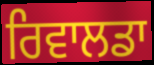
ਰਿਵਾਲਡਾ